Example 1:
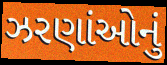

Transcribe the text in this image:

ઝરણાંઓનું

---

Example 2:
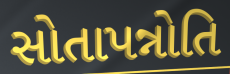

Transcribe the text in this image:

સોતાપન્નોતિ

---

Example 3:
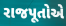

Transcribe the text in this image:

રાજપૂતોએ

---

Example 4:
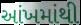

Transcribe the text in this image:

આંખમાંથી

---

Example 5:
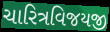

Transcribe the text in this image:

ચારિત્રવિજયજી